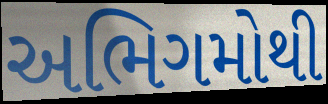
અભિગમોથી